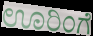
ಊರಿಂಗೆ